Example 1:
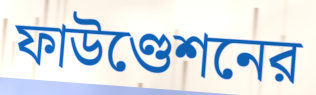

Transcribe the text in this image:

ফাউণ্ডেশনের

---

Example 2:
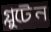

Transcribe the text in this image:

গ্লুটেন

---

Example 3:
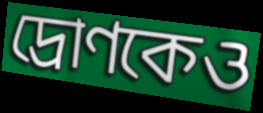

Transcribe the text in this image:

দ্রোণকেও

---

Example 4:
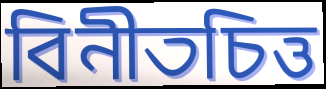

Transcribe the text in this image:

বিনীতচিত্ত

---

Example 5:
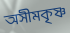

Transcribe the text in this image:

অসীমকৃষ্ণ